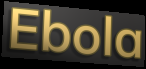
Ebola